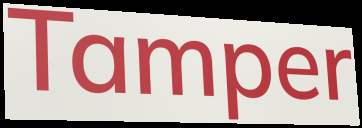
Tamper